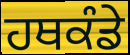
ਹਥਕੰਡੇ